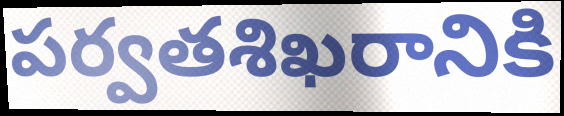
పర్వతశిఖరానికి